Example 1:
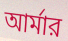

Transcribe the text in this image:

আর্মার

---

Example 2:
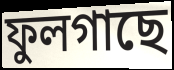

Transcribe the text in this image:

ফুলগাছে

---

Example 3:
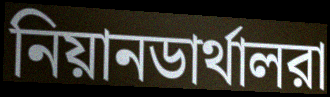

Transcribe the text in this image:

নিয়ানডার্থালরা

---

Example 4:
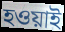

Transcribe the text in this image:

হওয়াই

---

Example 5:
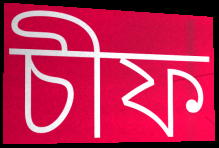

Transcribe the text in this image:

চীফ